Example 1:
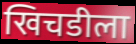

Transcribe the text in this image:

खिचडीला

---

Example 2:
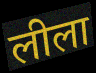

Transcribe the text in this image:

लीला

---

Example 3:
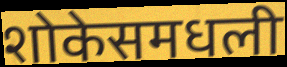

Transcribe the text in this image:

शोकेसमधली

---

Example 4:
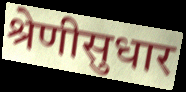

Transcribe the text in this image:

श्रेणीसुधार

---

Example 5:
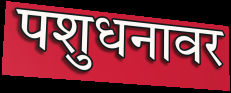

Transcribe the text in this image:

पशुधनावर